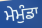
ਮੇਮੁੰਡਾ